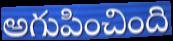
అగుపించింది